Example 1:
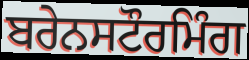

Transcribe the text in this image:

ਬਰੇਨਸਟੌਰਮਿੰਗ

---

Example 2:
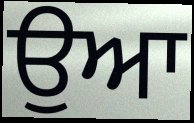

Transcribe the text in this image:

ਉਆ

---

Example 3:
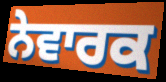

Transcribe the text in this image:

ਨੇਵਾਰਕ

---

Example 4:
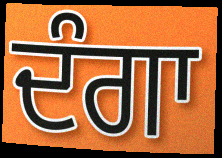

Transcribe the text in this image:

ਦੰਗਾ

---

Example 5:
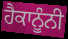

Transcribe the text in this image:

ਹੈਕਾਨੂੰਨੀ